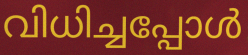
വിധിച്ചപ്പോൾ